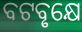
ବଟବୃକ୍ଷେ